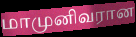
மாமுனிவரான